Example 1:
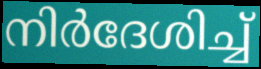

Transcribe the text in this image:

നിർദേശിച്ച്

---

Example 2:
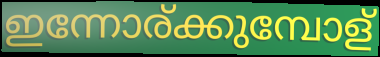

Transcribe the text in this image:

ഇന്നോര്ക്കുമ്പോള്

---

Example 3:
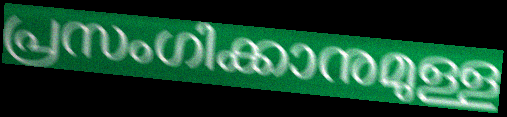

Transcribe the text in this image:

പ്രസംഗിക്കാനുമുള്ള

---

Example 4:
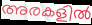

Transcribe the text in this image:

അരകളിൽ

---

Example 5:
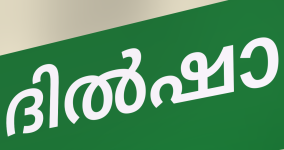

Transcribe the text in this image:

ദിൽഷാ